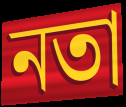
নতা